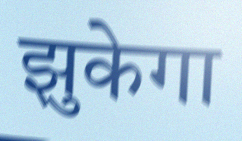
झुकेगा